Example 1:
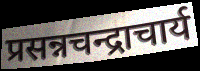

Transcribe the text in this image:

प्रसन्नचन्द्राचार्य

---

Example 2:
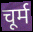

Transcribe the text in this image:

चूर्म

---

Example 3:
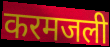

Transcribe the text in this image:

करमजली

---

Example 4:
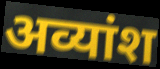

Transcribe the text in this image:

अव्यांश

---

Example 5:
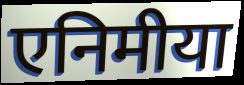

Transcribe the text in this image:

एनिमीया